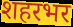
शहरभर